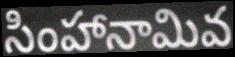
సింహానామివ